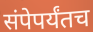
संपेपर्यंतच